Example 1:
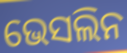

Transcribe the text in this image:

ଭେସଲିନ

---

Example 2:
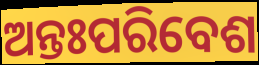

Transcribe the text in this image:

ଅନ୍ତଃପରିବେଶ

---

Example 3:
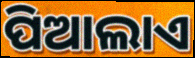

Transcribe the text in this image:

ପିଆଲାଏ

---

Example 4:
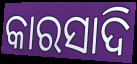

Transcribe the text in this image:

କାରସାଦି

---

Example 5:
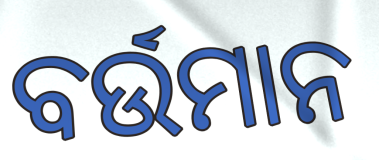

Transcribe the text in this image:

ବର୍ଉମାନ